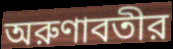
অরুণাবতীর